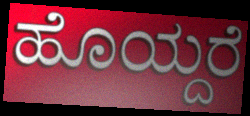
ಹೊಯ್ದರೆ